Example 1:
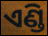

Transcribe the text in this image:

ଏଣ୍ଡି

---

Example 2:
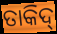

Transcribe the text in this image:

ତାକିଦ୍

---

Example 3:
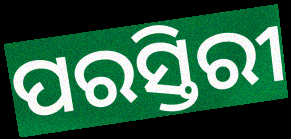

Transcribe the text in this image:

ପରସ୍ତିରୀ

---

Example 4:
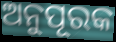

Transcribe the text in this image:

ଅନୁପୂରକ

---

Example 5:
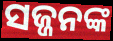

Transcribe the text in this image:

ସଜ୍ଜନଙ୍କ